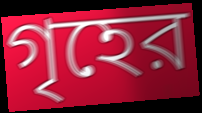
গৃহের